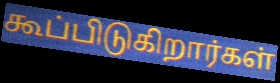
கூப்பிடுகிறார்கள்